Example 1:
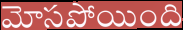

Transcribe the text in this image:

మోసపోయింది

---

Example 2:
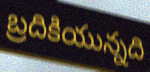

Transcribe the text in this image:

బ్రదికియున్నది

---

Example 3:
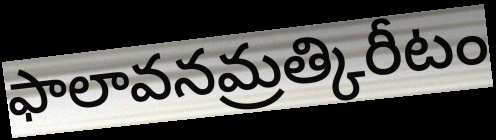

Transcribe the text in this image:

ఫాలావనమ్రత్కిరీటం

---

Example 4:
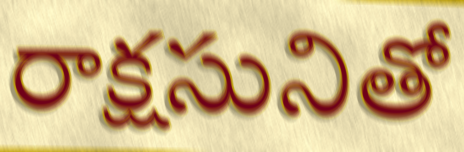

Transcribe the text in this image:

రాక్షసునితో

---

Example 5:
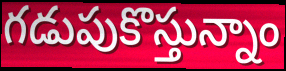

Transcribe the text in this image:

గడుపుకొస్తున్నాం